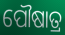
ପୌଷାତ୍ର